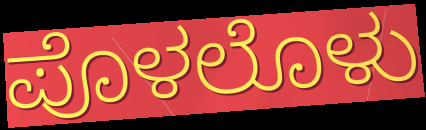
ಪೊಳಲೊಳು